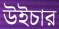
উইচার